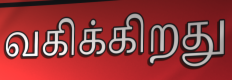
வகிக்கிறது